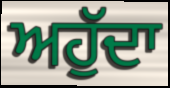
ਅਹੁੱਦਾ